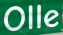
Olle